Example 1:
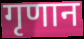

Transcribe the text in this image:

गृणान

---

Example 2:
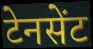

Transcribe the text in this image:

टेनसेंट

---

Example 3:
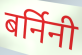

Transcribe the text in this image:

बर्निनी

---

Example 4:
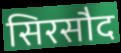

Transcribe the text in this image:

सिरसौद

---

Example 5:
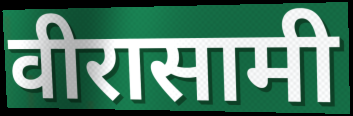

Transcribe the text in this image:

वीरासामी